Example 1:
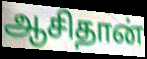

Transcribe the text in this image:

ஆசிதான்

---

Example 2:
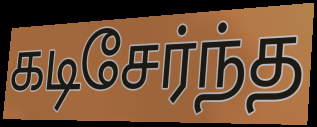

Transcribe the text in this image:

கடிசேர்ந்த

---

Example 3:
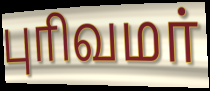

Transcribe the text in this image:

புரிவமர்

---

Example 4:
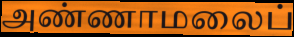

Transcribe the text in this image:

அண்ணாமலைப்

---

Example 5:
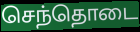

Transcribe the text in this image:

செந்தொடை